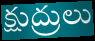
క్షుద్రులు